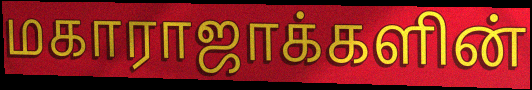
மகாராஜாக்களின்